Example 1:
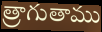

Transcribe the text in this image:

త్రాగుతాము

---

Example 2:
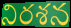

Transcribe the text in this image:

నిరశన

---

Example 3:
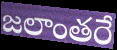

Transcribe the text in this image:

జలాంతరే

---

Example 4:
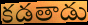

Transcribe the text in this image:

కడతాడు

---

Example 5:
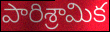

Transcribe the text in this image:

పారిశ్రామిక